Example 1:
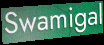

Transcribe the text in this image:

Swamigal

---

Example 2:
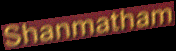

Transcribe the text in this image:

Shanmatham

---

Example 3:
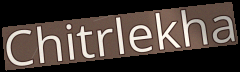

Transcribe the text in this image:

Chitrlekha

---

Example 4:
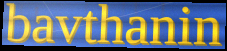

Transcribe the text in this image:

bavthanin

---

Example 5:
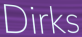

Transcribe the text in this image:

Dirks